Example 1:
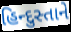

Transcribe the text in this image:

હિન્દુસ્તાને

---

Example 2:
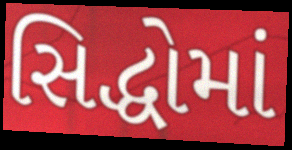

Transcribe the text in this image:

સિદ્ધોમાં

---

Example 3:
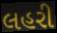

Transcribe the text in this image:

લહરી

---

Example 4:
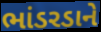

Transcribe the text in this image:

ભાંડરડાને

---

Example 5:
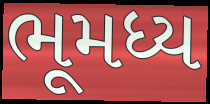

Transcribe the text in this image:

ભૂમધ્ય